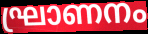
ഘ്രാണനം